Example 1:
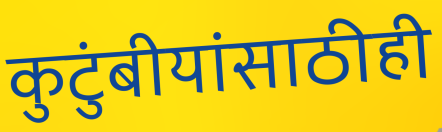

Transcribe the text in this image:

कुटुंबीयांसाठीही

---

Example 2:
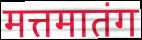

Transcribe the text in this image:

मत्तमातंग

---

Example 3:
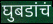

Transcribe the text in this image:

घुबडांचं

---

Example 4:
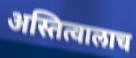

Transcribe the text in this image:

अस्तित्वालाच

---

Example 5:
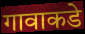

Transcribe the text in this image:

गावाकडे